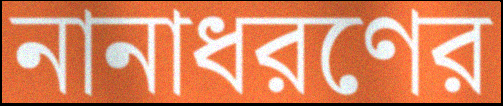
নানাধরণের